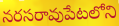
నరసరావుపేటలోని